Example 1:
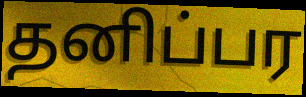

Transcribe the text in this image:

தனிப்பர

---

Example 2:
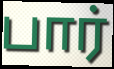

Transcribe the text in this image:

பார்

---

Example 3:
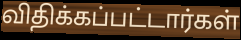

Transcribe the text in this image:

விதிக்கப்பட்டார்கள்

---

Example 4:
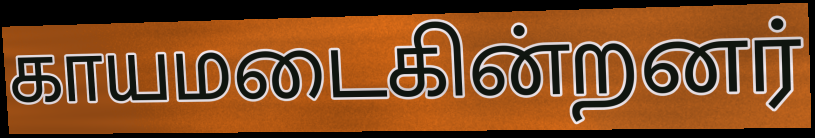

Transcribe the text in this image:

காயமடைகின்றனர்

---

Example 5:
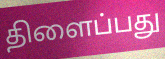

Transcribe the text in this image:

திளைப்பது